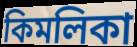
কিমলিকা